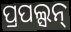
ପ୍ରପଲ୍ସନ୍